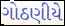
ગોઠણીયે